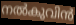
നൽകുവിൻ